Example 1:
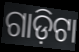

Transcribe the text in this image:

ଗାଡ଼ିଟା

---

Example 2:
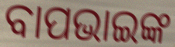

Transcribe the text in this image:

ବାପଭାଇଙ୍କ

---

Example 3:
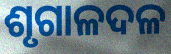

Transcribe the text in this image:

ଶୃଗାଳଦଳ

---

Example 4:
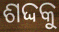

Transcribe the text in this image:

ଶଦ୍ଦକୁ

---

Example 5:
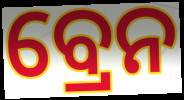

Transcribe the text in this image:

ବ୍ରେନ